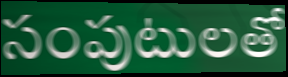
సంపుటులతో